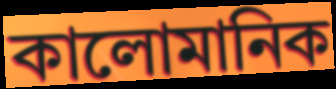
কালোমানিক